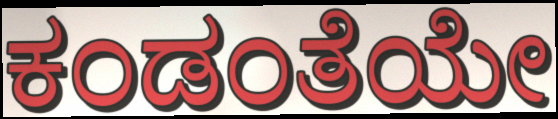
ಕಂಡಂತೆಯೇ